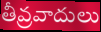
తీవ్రవాదులు